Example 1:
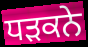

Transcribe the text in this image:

ਧਡ਼ਕਨੇ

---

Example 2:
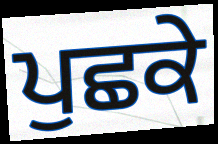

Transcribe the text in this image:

ਪੁਛਕੇ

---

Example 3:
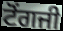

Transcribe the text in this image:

ਟੋਂਗਜੀ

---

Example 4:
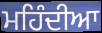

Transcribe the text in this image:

ਮਹਿੰਦੀਆ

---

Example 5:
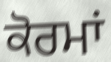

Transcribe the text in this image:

ਕੋਰਮਾਂ